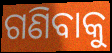
ଗଣିବାକୁ